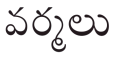
వర్మలు